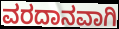
ವರದಾನವಾಗಿ